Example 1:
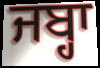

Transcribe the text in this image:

ਜਬ੍ਹਾ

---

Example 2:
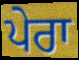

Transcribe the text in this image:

ਪੇਰਾ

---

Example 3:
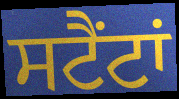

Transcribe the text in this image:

ਸਟੈਂਟਾਂ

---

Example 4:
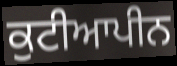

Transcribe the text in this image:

ਕੁਟੀਆਪੀਨ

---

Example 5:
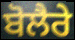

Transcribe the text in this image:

ਬੋਲੈਰੇ